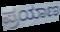
ಪ್ರಯಾಣ